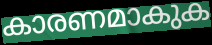
കാരണമാകുക